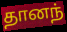
தானந்